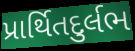
પ્રાર્થિતદુર્લભ